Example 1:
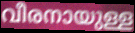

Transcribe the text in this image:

വീരനായുള്ള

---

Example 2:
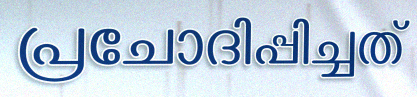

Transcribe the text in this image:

പ്രചോദിപ്പിച്ചത്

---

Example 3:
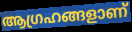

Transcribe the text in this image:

ആഗ്രഹങ്ങളാണ്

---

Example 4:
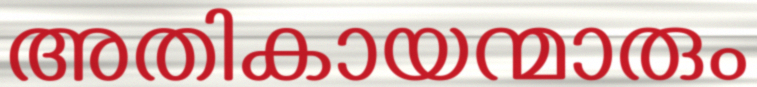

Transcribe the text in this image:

അതികായന്മാരും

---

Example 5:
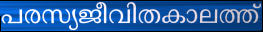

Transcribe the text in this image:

പരസ്യജീവിതകാലത്ത്